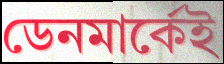
ডেনমার্কেই